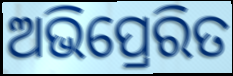
ଅଭିପ୍ରେରିତ